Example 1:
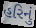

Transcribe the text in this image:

હરિનું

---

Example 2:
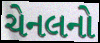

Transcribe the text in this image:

ચેનલનો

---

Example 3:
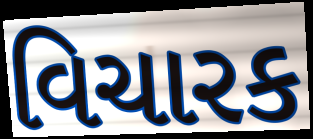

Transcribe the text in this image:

વિચારક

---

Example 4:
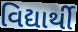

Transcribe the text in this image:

વિદ્યાર્થી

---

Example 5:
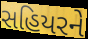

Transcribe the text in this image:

સહિયરને